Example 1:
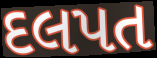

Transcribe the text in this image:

દલપત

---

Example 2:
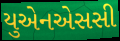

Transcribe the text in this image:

યુએનએસસી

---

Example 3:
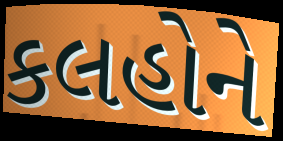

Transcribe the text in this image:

કલહોને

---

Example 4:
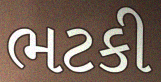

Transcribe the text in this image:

ભટકી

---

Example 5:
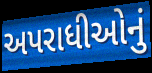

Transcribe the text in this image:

અપરાધીઓનું